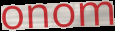
onom